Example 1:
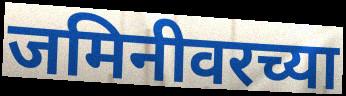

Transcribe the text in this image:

जमिनीवरच्या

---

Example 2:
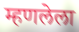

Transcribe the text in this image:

म्हणलेला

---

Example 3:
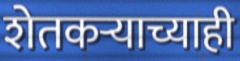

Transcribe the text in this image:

शेतकऱ्याच्याही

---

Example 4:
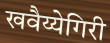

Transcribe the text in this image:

खवैय्येगिरी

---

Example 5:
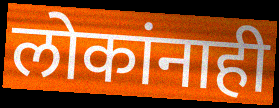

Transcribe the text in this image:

लोकांनाही